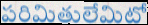
పరిమితులేమిటో